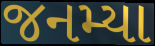
જનમ્યા